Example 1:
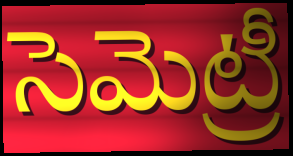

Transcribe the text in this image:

సెమెట్రీ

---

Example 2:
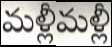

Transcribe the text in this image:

మళ్లీమళ్లీ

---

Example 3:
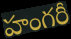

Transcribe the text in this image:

హంగరీ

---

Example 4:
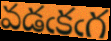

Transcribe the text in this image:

వడఁకఁగ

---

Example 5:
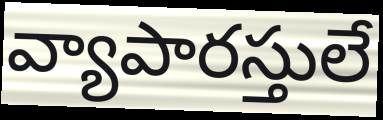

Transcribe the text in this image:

వ్యాపారస్తులే